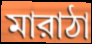
মারাঠা